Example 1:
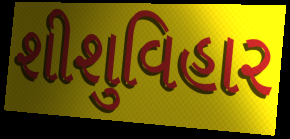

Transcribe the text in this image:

શીશુવિહાર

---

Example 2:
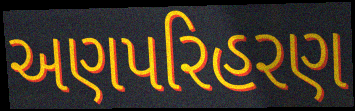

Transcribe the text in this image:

અણપરિહરણ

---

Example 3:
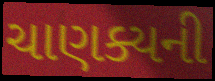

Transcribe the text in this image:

ચાણક્યની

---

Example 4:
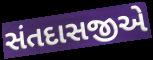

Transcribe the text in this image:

સંતદાસજીએ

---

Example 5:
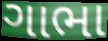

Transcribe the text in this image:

ગાભા